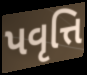
પવૃત્તિ